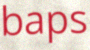
baps